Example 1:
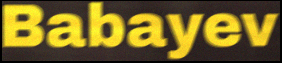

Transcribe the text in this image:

Babayev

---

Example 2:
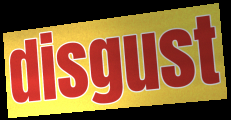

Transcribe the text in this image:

disgust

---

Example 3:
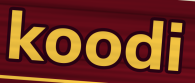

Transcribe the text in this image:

koodi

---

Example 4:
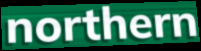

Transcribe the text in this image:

northern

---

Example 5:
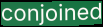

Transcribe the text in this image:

conjoined